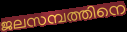
ജലസമ്പത്തിനെ